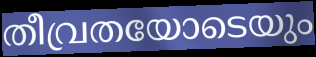
തീവ്രതയോടെയും